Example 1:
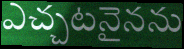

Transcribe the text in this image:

ఎచ్చటనైనను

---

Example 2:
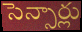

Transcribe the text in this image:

సెన్సార్లు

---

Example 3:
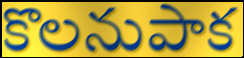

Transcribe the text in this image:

కొలనుపాక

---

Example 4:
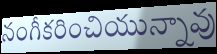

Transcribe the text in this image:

నంగీకరించియున్నావు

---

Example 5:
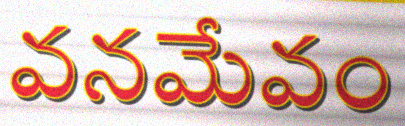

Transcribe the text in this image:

వనమేవం